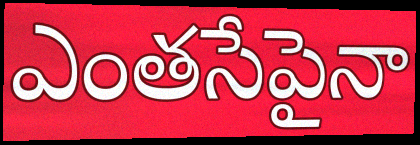
ఎంతసేపైనా